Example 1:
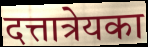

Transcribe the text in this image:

दत्तात्रेयका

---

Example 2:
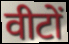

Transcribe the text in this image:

वीटों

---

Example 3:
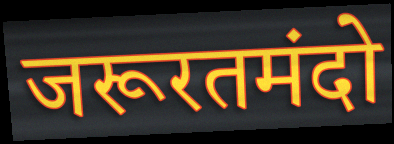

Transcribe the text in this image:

जरूरतमंदो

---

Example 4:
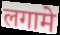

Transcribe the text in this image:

लगामे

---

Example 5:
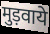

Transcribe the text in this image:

मुड़वाये